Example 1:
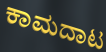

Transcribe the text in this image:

ಕಾಮದಾಟ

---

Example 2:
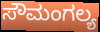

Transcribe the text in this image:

ಸೌಮಂಗಲ್ಯ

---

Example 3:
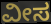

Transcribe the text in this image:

ವೀಸ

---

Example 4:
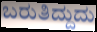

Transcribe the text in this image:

ಬರುತಿದ್ದುದು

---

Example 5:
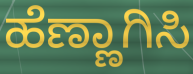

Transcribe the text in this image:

ಹೆಣ್ಣಾಗಿಸಿ